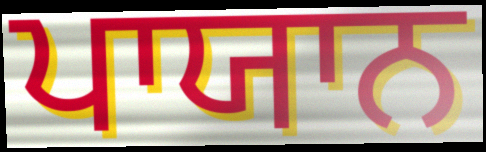
ਪਾਯਾਨ